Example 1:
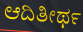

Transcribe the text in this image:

ಆದಿತೀರ್ಥ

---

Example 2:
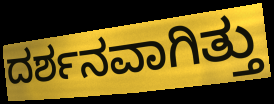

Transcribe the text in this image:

ದರ್ಶನವಾಗಿತ್ತು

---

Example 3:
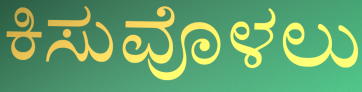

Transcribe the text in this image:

ಕಿಸುವೊಳಲು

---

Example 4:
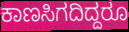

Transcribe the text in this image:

ಕಾಣಸಿಗದಿದ್ದರೂ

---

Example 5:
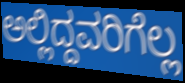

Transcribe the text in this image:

ಅಲ್ಲಿದ್ದವರಿಗೆಲ್ಲ